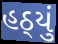
હઠ્યું